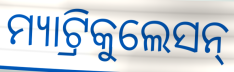
ମ୍ୟାଟ୍ରିକୁଲେସନ୍